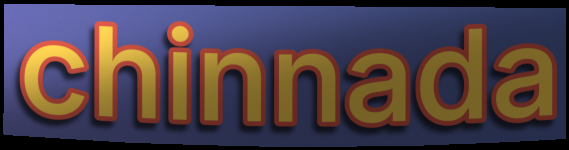
chinnada